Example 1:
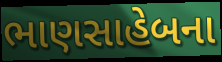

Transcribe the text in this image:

ભાણસાહેબના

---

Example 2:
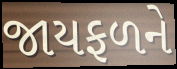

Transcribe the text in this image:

જાયફળને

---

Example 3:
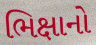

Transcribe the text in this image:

ભિક્ષાનો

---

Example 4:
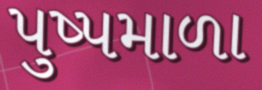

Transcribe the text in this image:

પુષ્પમાળા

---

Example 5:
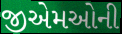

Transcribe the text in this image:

જીએમઓની